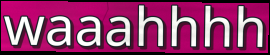
waaahhhh